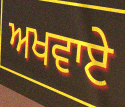
ਅਖਵਾਏ